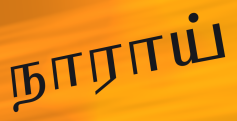
நாராய்